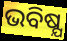
ଭବିଷ୍ଯ